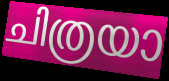
ചിത്രയാ